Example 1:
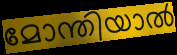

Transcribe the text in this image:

മോന്തിയാൽ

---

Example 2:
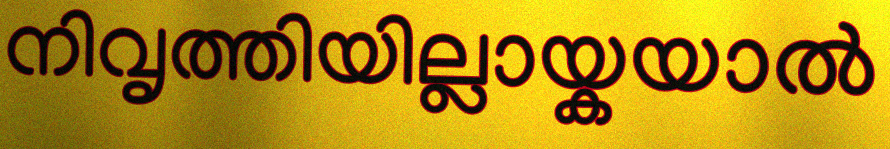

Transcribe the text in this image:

നിവൃത്തിയില്ലായ്കയാൽ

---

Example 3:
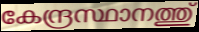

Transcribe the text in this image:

കേന്ദ്രസ്ഥാനത്തു്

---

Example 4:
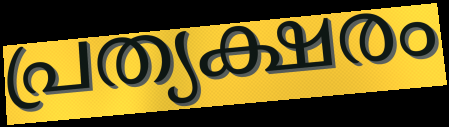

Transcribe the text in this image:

പ്രത്യക്ഷരം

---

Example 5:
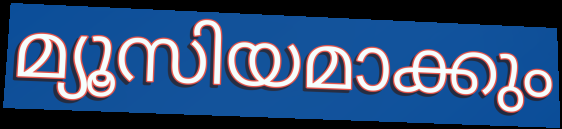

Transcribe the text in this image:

മ്യൂസിയമാക്കും